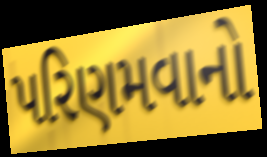
પરિણમવાનો